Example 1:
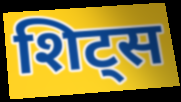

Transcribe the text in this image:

शिट्स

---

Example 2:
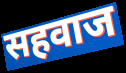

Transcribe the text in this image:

सहवाज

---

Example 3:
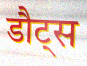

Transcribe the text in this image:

डौट्स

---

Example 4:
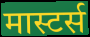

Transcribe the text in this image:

मास्टर्स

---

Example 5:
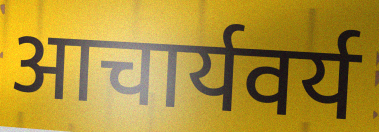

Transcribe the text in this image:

आचार्यवर्य